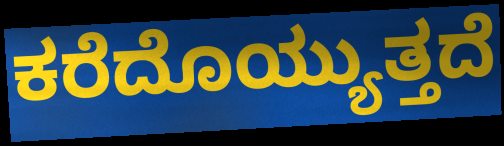
ಕರೆದೊಯ್ಯುತ್ತದೆ